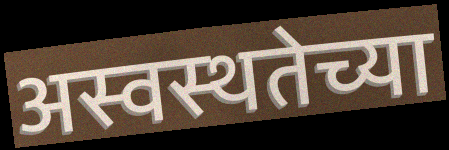
अस्वस्थतेच्या